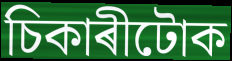
চিকাৰীটোক